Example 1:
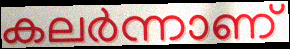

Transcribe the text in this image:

കലർന്നാണ്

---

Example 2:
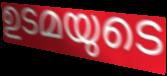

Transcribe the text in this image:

ഉടമയുടെ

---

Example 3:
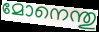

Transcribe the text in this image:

മോനെന്തു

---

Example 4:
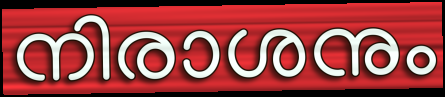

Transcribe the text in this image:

നിരാശനും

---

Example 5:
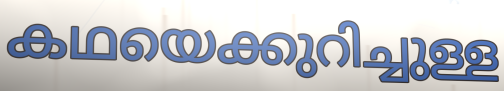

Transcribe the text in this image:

കഥയെക്കുറിച്ചുള്ള